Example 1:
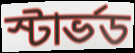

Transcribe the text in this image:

স্টার্ভড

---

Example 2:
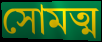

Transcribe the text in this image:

সোমত্ম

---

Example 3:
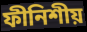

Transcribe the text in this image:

ফীনিশীয়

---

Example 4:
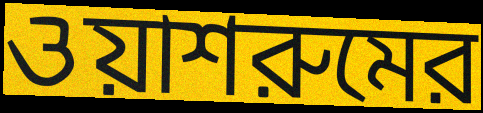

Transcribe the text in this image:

ওয়াশরুমের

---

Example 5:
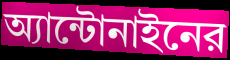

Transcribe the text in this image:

অ্যান্টোনাইনের